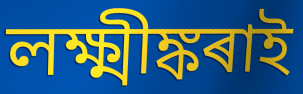
লক্ষ্মীঙ্কৰাই